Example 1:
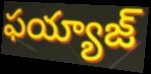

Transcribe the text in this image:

ఫయ్యాజ్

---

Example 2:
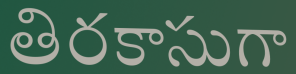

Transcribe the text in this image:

తిరకాసుగా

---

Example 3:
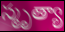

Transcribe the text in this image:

స్మృత్యా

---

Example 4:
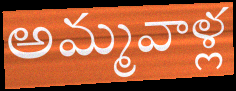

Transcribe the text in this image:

అమ్మవాళ్ల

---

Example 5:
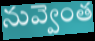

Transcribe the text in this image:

నువ్వెంత